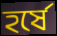
হর্ষে